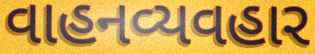
વાહનવ્યવહાર